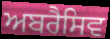
ਅਬਰੈਸਿਵ